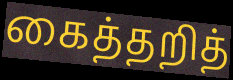
கைத்தறித்